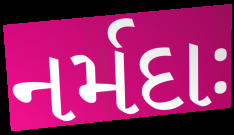
નર્મદાઃ